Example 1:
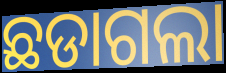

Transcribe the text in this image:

ଛଡାଗଲା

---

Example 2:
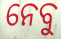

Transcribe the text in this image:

ନେବୁ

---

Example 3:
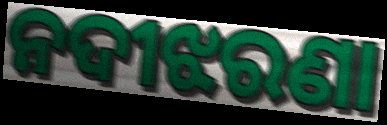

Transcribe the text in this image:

ନଦୀଝରଣା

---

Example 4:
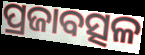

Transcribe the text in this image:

ପ୍ରଜାବତ୍ସଳ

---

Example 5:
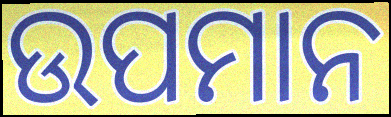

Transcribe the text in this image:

ଉପମାନ